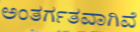
ಅಂತರ್ಗತವಾಗಿವೆ